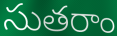
సుతరాం